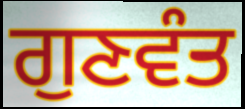
ਗੁਣਵੰਤ